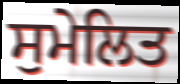
ਸੁਮੇਲਿਤ